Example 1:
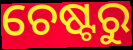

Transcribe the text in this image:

ଚେଷ୍ଟରୁ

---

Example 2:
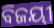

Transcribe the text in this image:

ବିଜୟୀ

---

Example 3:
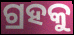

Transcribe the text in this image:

ଗ୍ରହକୁ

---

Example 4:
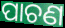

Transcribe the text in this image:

ପାଚଣ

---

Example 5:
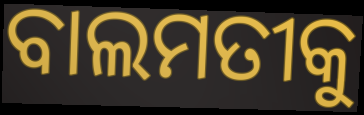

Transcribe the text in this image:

ବାଲମତୀକୁ